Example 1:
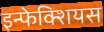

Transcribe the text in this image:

इन्फेक्शियस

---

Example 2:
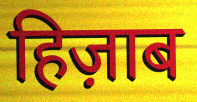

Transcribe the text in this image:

हिज़ाब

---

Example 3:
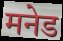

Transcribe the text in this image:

मनेड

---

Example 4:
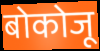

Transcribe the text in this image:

बोकोजू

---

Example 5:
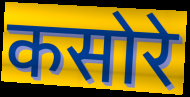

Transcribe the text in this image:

कसोरे